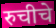
रुचीचे